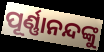
ପୂର୍ଣ୍ଣାନନ୍ଦଙ୍କୁ